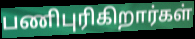
பணிபுரிகிறார்கள்